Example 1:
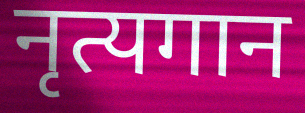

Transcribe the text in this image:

नृत्यगान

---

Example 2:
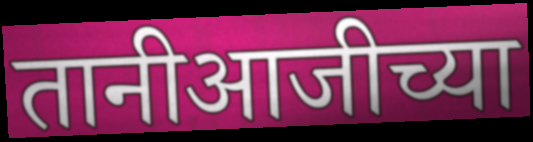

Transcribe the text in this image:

तानीआजीच्या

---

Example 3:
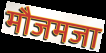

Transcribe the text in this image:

मौजमजा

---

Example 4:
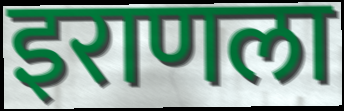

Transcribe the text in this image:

इराणला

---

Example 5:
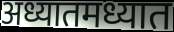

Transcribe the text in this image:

अध्यातमध्यात